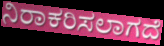
ನಿರಾಕರಿಸಲಾಗದೆ